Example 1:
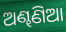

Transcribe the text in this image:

ଅଣ୍ଢଣିଆ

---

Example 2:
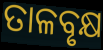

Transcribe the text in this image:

ତାଳବୃକ୍ଷ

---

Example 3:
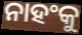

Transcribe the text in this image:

ନାହଂକୁ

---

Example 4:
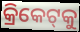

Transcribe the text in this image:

କ୍ରିକେଟ୍‌କୁ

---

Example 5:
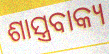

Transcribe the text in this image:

ଶାସ୍ତ୍ରବାକ୍ୟ